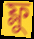
ফ্লু